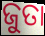
ଜୁତା